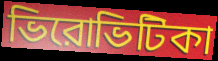
ভিরোভিটিকা